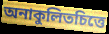
অনাকুলিতচিত্তে